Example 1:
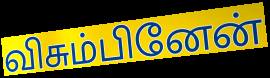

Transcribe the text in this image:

விசும்பினேன்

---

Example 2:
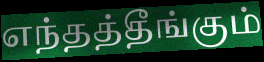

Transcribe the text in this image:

எந்தத்தீங்கும்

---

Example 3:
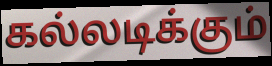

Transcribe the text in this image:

கல்லடிக்கும்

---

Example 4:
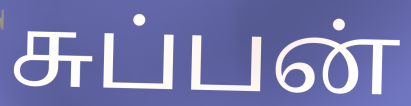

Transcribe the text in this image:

சுப்பன்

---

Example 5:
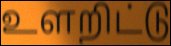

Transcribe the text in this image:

உளறிட்டு